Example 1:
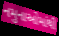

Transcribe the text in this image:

નમુનાઓમાંથી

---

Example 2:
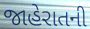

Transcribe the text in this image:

જાહેરાતની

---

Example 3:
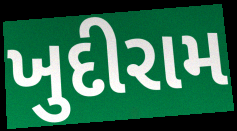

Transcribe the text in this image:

ખુદીરામ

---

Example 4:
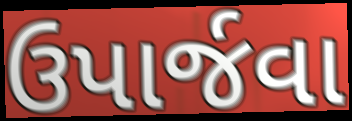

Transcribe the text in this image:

ઉપાર્જવા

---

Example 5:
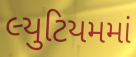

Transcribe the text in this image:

લ્યુટિયમમાં